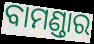
ବାମଣ୍ଡାର